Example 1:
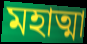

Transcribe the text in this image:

মহাত্মা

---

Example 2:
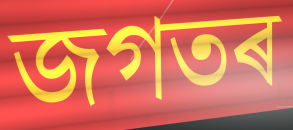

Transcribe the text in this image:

জগতৰ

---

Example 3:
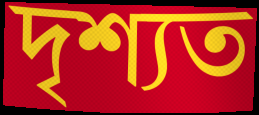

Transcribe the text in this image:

দৃশ্যত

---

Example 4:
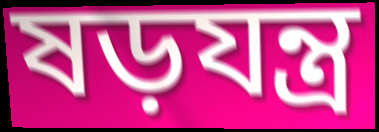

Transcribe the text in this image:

ষড়যন্ত্ৰ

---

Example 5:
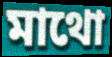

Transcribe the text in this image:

মাথো